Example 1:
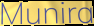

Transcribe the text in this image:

Munira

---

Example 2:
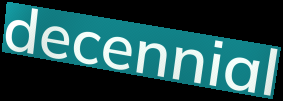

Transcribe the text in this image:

decennial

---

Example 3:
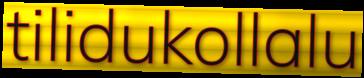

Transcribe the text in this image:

tilidukollalu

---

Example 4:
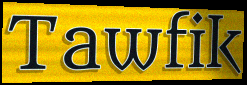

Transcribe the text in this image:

Tawfik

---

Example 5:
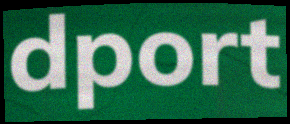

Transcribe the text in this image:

dport